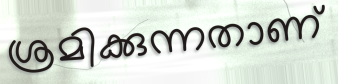
ശ്രമിക്കുന്നതാണ്